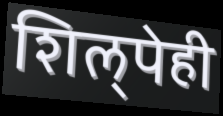
शिल्पेही